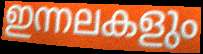
ഇന്നലകളും